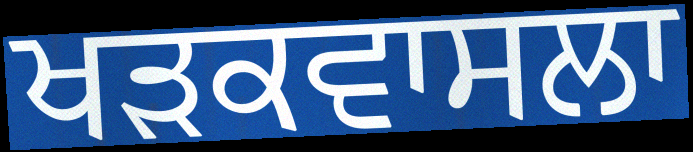
ਖੜਕਵਾਸਲਾ